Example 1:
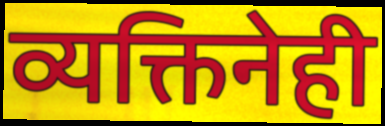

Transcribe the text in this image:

व्यक्तिनेही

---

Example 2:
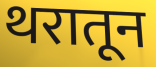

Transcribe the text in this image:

थरातून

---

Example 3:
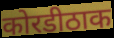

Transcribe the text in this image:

कोरडीठाक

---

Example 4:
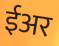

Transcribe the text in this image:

ईअर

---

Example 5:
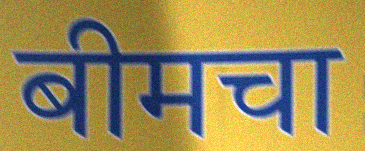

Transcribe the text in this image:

बीमचा